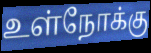
உள்நோக்கு